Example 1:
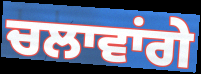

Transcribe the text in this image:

ਚਲਾਵਾਂਗੇ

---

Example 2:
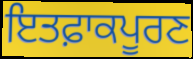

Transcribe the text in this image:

ਇਤਫ਼ਾਕਪੂਰਣ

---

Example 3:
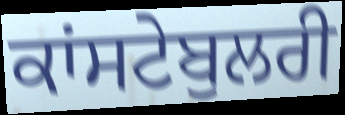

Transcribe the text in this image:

ਕਾਂਸਟੇਬੁਲਰੀ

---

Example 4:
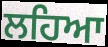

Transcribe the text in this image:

ਲਹਿਆ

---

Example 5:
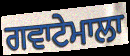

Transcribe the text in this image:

ਗਵਾਟੇਮਾਲਾ